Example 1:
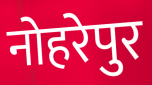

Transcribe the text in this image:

नोहरेपुर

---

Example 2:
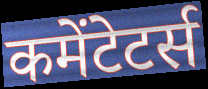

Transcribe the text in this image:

कमेंटेटर्स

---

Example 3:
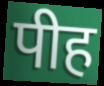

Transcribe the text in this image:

पीह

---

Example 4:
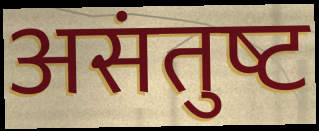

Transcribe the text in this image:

असंतुष्‍ट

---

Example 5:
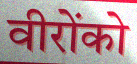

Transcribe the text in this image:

वीरोंको